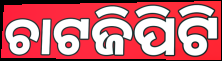
ଚାଟଜିପିଟି